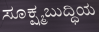
ಸೂಕ್ಷ್ಮಬುದ್ಧಿಯ